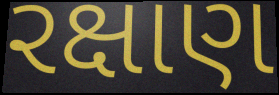
રક્ષાણ